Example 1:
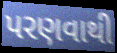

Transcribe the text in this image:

પરણવાથી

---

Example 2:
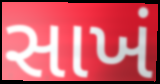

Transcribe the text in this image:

સાખં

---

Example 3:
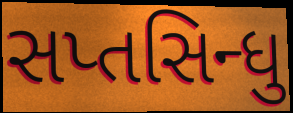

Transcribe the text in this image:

સપ્તસિન્ધુ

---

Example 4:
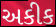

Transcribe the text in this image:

અકીક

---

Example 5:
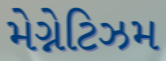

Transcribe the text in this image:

મેગ્નેટિઝમ